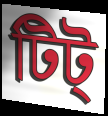
টিট্